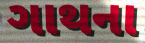
ગાથના